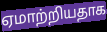
ஏமாற்றியதாக